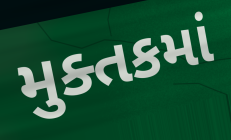
મુક્તકમાં